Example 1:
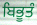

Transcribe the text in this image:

ਬਿਭੂਤੰ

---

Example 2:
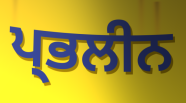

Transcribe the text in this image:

ਪ੍ਭਲੀਨ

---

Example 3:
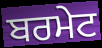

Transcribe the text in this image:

ਬਰਮੇਟ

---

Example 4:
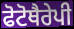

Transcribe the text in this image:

ਫੋਟੋਥੈਰੇਪੀ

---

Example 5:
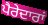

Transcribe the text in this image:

ਪੈਰੇਦਾਰਾਂ